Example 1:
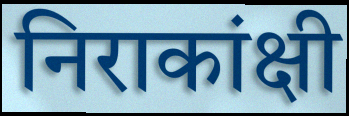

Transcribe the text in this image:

निराकांक्षी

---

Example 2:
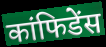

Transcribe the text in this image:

कांफिडेंस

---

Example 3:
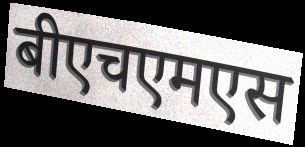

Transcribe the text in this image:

बीएचएमएस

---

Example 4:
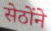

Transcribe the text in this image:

सेठोंने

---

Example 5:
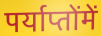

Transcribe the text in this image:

पर्याप्तोंमें